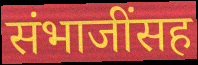
संभाजींसह